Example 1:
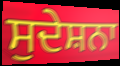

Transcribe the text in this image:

ਸੁਦੇਸ਼ਨਾ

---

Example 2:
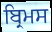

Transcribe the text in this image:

ਬ੍ਰਿਮਸ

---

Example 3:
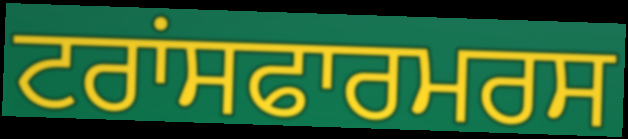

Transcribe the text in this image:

ਟਰਾਂਸਫਾਰਮਰਸ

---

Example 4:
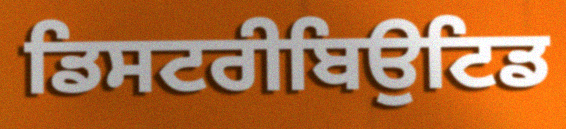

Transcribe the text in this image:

ਡਿਸਟਰੀਬਿਉਟਿਡ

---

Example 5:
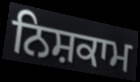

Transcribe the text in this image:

ਨਿਸ਼ਕਾਮ